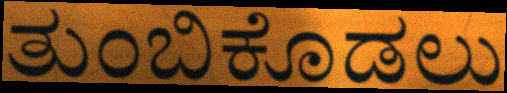
ತುಂಬಿಕೊಡಲು